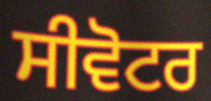
ਸੀਵੋਟਰ